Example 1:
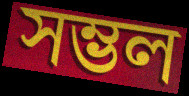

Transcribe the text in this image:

সম্ভল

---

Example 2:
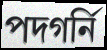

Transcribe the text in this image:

পদগর্নি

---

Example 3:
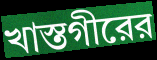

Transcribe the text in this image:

খাস্তগীরের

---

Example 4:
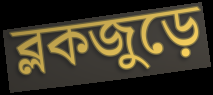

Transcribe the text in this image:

ব্লকজুড়ে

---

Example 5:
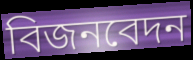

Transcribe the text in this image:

বিজনবেদন